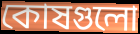
কোষগুলো